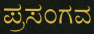
ಪ್ರಸಂಗವ